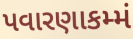
પવારણાકમ્મં